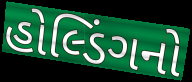
હોલ્ડિંગનો